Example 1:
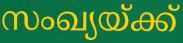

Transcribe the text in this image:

സംഖ്യയ്ക്ക്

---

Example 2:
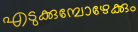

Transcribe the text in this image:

എടുക്കുമ്പോഴേക്കും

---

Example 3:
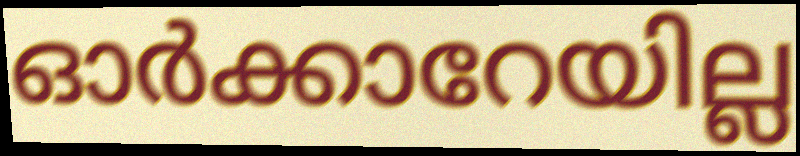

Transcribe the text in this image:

ഓർക്കാറേയില്ല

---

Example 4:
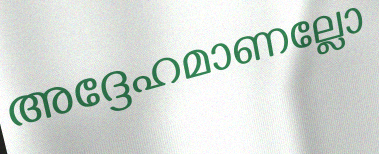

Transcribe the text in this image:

അദ്ദേഹമാണല്ലോ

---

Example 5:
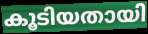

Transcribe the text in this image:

കൂടിയതായി